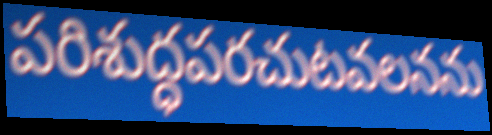
పరిశుద్ధపరచుటవలనను